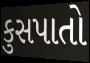
કુસપાતો